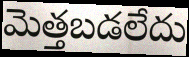
మెత్తబడలేదు